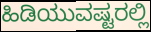
ಹಿಡಿಯುವಷ್ಟರಲ್ಲಿ